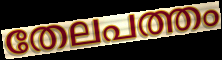
തേലപത്തം